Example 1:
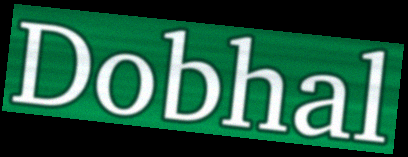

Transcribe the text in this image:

Dobhal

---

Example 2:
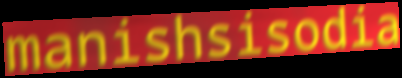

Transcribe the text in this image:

manishsisodia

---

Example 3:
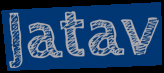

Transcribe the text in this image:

Jatav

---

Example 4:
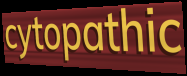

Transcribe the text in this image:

cytopathic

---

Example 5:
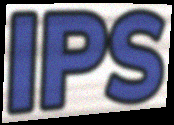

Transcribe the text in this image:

IPS